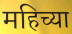
महिच्या